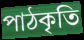
পাঠকৃতি